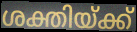
ശക്തിയ്ക്ക്